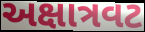
અક્ષાત્રવટ